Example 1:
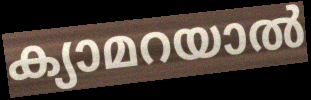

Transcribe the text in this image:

ക്യാമറയാൽ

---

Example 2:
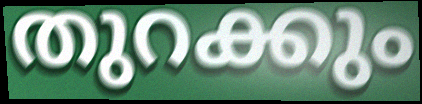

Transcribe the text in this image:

തുറക്കും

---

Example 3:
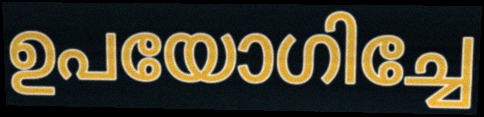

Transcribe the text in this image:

ഉപയോഗിച്ചേ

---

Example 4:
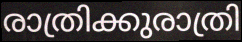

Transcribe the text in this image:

രാത്രിക്കുരാത്രി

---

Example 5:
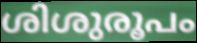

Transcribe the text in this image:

ശിശുരൂപം